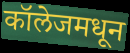
कॉलेजमधून